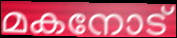
മകനോട്